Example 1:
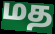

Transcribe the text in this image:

மத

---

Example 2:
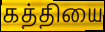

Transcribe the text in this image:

கத்தியை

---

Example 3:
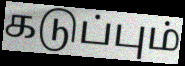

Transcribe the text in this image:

கடுப்பும்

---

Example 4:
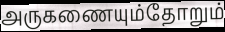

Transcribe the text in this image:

அருகணையும்தோறும்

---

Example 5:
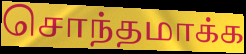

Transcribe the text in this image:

சொந்தமாக்க